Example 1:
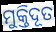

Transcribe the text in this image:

ମୁକ୍ତିଦୂତ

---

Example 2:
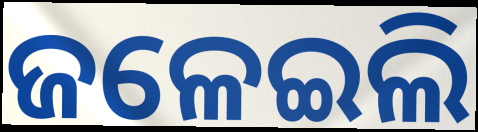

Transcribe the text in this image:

ଜଳେଇଲି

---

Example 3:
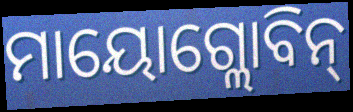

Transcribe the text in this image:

ମାୟୋଗ୍ଲୋବିନ୍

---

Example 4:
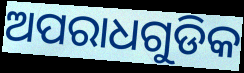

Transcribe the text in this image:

ଅପରାଧଗୁଡିକ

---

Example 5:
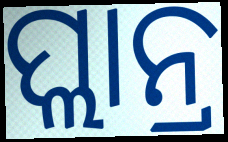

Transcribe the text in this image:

ପ୍ଲାନ୍ର